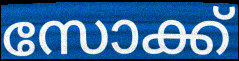
സോക്ക്